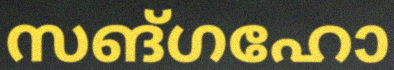
സങ്ഗഹോ